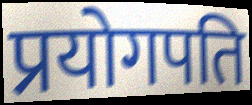
प्रयोगपति